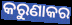
କରୁଣାକର